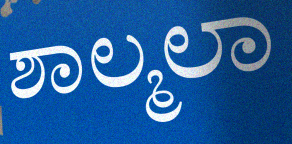
ಶಾಲ್ಮಲಾ